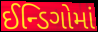
ઈન્ડિગોમાં